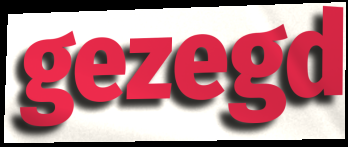
gezegd